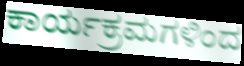
ಕಾರ್ಯಕ್ರಮಗಳಿಂದ